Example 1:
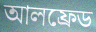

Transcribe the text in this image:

আলফ্রেড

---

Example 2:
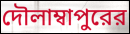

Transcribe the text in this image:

দৌলাম্বাপুরের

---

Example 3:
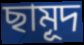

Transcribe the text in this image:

ছামূদ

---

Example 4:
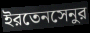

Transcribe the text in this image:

ইরতেনসেনুর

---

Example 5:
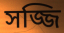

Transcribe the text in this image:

সজ্জি